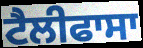
ਟੈਲੀਫਾਸਾ